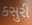
કસુરી